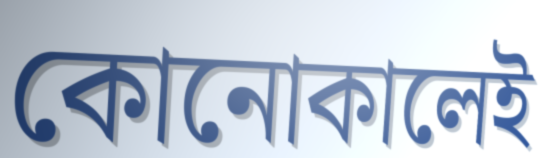
কোনোকালেই